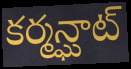
కర్మన్ఘాట్